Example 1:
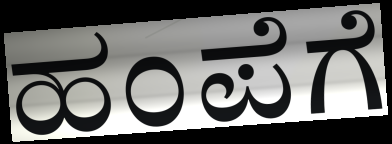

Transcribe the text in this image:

ಹಂಪೆಗೆ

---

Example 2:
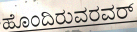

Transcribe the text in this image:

ಹೊಂದಿರುವರವರ್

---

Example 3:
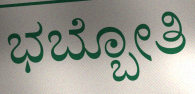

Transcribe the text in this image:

ಭಬ್ಬೋತಿ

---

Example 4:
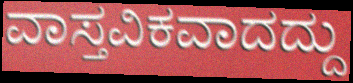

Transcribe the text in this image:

ವಾಸ್ತವಿಕವಾದದ್ದು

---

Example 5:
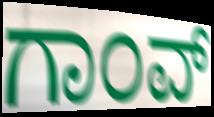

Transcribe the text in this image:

ಗಾಂವ್